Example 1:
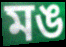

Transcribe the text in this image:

মঙ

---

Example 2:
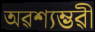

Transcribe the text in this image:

অৱশ্যম্ভৱী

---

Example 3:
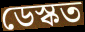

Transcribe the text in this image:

ডেস্কত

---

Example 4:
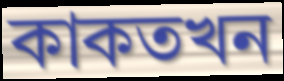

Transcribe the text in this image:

কাকতখন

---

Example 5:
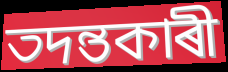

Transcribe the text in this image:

তদন্তকাৰী